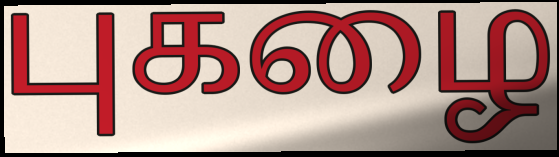
புகழை